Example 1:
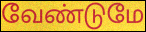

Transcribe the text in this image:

வேண்டுமே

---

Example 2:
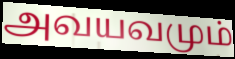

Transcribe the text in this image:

அவயவமும்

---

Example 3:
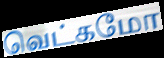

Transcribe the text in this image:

வெட்கமோ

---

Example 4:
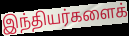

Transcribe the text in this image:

இந்தியர்களைக்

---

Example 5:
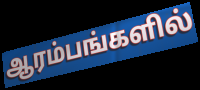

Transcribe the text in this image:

ஆரம்பங்களில்